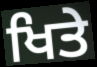
ਖਿਤੇ